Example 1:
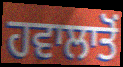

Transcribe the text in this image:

ਹਵਾਲਾਤੋਂ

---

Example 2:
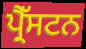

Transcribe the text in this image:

ਪ੍ਰੈੱਸਟਨ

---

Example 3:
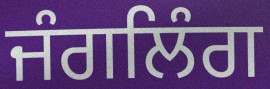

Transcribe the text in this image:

ਜੰਗਲਿੰਗ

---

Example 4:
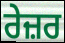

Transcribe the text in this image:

ਰੇਜ਼ਰ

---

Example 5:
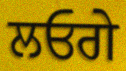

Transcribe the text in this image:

ਲਓਗੇ